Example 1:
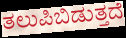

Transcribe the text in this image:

ತಲುಪಿಬಿಡುತ್ತದೆ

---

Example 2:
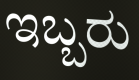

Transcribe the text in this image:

ಇಬ್ಬರು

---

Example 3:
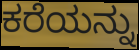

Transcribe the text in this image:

ಕರೆಯನ್ನು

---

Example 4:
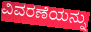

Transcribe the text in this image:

ವಿವರಣೆಯನ್ನು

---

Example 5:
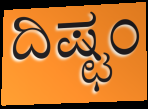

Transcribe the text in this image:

ದಿಷ್ಟಂ